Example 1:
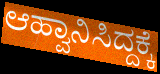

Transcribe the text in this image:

ಆಹ್ವಾನಿಸಿದ್ದಕ್ಕೆ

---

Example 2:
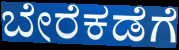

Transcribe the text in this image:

ಬೇರೆಕಡೆಗೆ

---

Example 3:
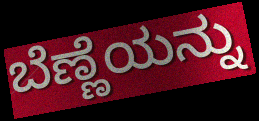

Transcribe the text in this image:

ಬೆಣ್ಣೆಯನ್ನು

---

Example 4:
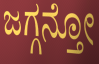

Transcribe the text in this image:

ಜಗ್ಗನ್ತೋ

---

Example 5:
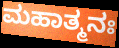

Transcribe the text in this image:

ಮಹಾತ್ಮನಃ